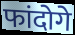
फांदोगे